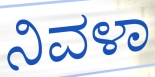
ನಿವಳಾ